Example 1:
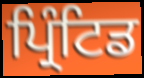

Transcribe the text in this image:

ਪ੍ਰਿੰਟਿਡ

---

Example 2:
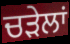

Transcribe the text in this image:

ਚੜੇਲਾਂ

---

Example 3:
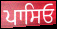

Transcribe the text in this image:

ਪਾਸਿਓ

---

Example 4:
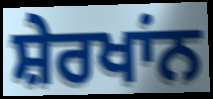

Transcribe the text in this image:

ਸ਼ੇਰਖਾਂਨ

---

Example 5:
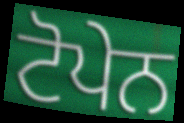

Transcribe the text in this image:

ਟੋਪੇਨ